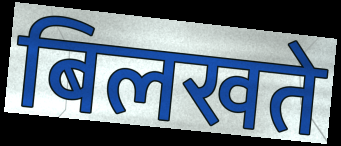
बिलखते